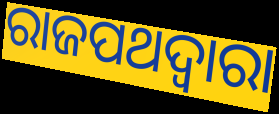
ରାଜପଥଦ୍ୱାରା